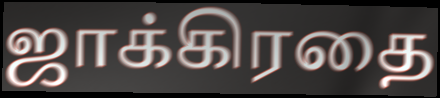
ஜாக்கிரதை